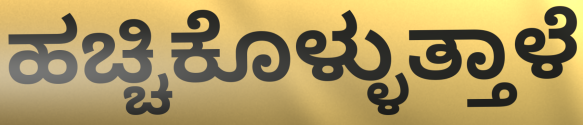
ಹಚ್ಚಿಕೊಳ್ಳುತ್ತಾಳೆ